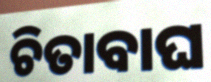
ଚିତାବାଘ